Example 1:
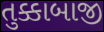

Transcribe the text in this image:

તુક્કાબાજી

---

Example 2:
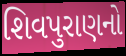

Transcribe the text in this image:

શિવપુરાણનો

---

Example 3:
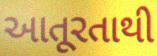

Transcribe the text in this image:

આતૂરતાથી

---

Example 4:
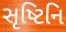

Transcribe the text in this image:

સૃષ્ટિનિ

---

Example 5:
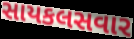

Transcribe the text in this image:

સાયકલસવાર